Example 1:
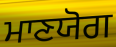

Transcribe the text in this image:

ਮਾਣਯੋਗ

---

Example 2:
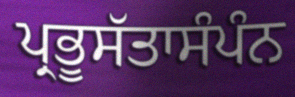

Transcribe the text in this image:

ਪ੍ਰਭੂਸੱਤਾਸੰਪੰਨ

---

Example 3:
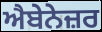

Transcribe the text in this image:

ਐਬੇਨੇਜ਼ਰ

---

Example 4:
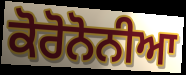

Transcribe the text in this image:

ਕੋਰੋਨੋਨੀਆ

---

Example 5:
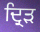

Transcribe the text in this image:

ਦ੍ਰਿੜ